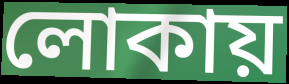
লোকায়